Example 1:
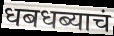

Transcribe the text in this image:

धबधब्याचं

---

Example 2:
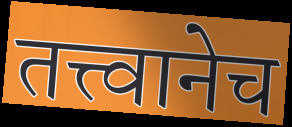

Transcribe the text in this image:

तत्त्वानेच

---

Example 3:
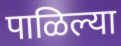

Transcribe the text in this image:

पाळिल्या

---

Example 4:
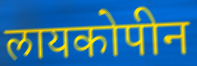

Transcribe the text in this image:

लायकोपीन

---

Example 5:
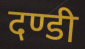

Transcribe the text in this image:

दण्डी